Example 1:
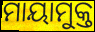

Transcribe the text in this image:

ମାୟାମୁକ୍ତ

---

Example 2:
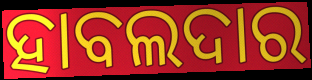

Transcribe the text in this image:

ହାବଲଦାର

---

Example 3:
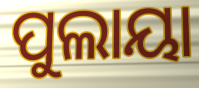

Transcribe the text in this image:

ପୁଲାୟା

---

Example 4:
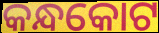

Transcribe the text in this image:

କନ୍ଧକୋଟ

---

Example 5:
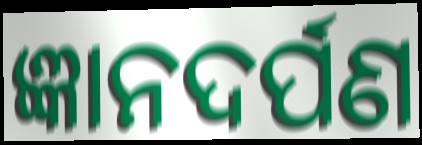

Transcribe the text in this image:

ଜ୍ଞାନଦର୍ପଣ